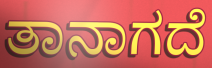
ತಾನಾಗದೆ